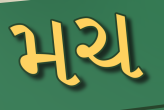
મચ